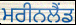
ਮਰੀਨਲੈਂਡ